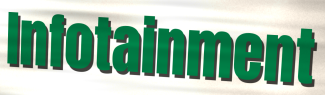
Infotainment